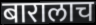
बारालाच